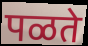
पळते